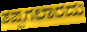
ತಪ್ಪಗಲಾರದು